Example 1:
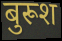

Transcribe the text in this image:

बुरूश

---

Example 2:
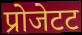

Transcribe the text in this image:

प्रोजेटट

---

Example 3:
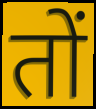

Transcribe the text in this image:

तों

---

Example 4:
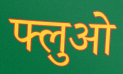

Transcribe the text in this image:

फ्लुओ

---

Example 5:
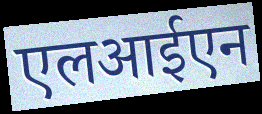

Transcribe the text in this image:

एलआईएन